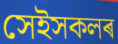
সেইসকলৰ